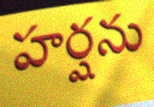
హర్షను